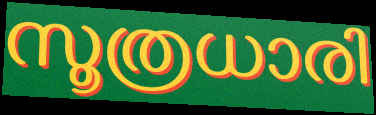
സൂത്രധാരി